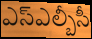
ఎస్ఎల్బీసీ